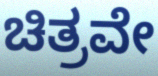
ಚಿತ್ರವೇ